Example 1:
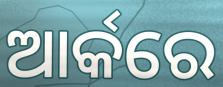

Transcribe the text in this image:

ଆର୍କରେ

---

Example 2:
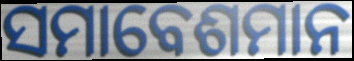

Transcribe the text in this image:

ସମାବେଶମାନ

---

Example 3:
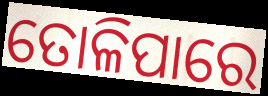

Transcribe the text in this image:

ତୋଳିପାରେ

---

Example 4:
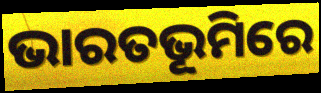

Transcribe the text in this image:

ଭାରତଭୂମିରେ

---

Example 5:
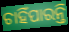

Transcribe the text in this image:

ଚାହିଁପାରନ୍ତି